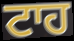
ਟਾਹ